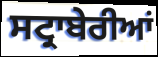
ਸਟ੍ਰਾਬੇਰੀਆਂ